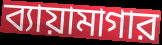
ব্যায়ামাগার